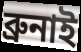
ব্ৰুনাই